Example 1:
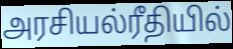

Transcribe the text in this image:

அரசியல்ரீதியில்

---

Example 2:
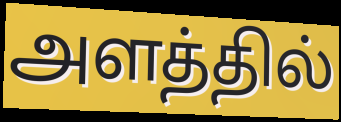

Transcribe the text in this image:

அளத்தில்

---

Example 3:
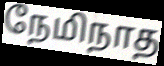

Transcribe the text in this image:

நேமிநாத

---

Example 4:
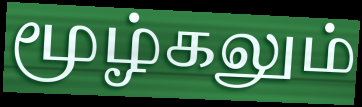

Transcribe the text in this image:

மூழ்கலும்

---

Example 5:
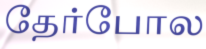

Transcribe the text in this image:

தேர்போல